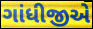
ગાંધીજીએ